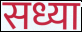
सध्या